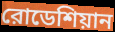
রোডেশিয়ান